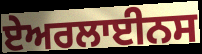
ਏਅਰਲਾਈਨਸ